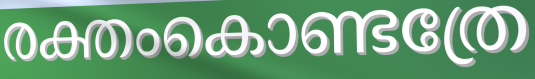
രക്തംകൊണ്ടത്രേ